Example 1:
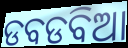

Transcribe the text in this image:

ଡବଡବିଆ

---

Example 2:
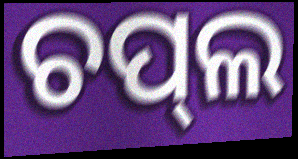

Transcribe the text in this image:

ଚପ୍‌ଲ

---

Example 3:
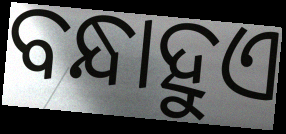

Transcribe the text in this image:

ବନ୍ଧାହୁଏ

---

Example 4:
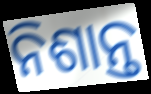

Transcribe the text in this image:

ନିଶାନ୍ତ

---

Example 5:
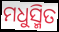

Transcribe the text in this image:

ମଧୁସ୍ମିତ